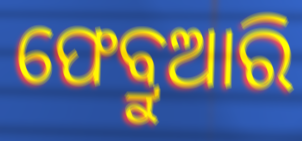
ଫେବ୍ରୁଆରି